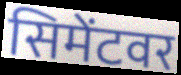
सिमेंटवर